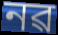
নৱ